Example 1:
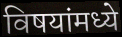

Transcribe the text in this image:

विषयांमध्ये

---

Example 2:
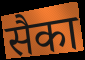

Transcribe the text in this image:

सैका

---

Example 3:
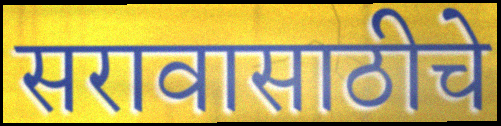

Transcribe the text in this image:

सरावासाठीचे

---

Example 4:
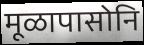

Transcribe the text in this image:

मूळापासोनि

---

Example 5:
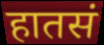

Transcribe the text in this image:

हातसं